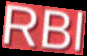
RBl